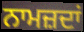
ਨਾਮਜ਼ਦਾਂ